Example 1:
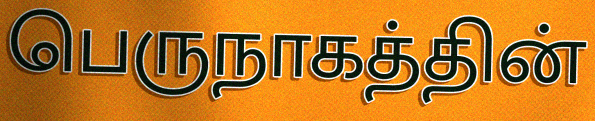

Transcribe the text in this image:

பெருநாகத்தின்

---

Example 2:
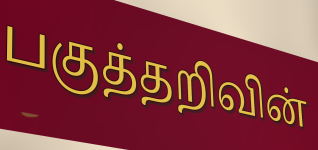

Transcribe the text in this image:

பகுத்தறிவின்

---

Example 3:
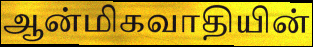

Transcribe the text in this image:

ஆன்மிகவாதியின்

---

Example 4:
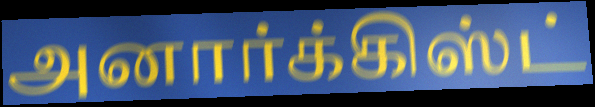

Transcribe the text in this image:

அனார்க்கிஸ்ட்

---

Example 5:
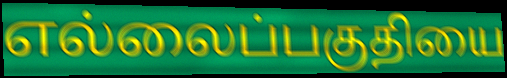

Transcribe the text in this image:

எல்லைப்பகுதியை